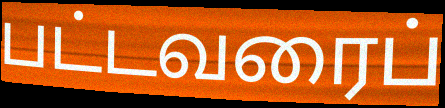
பட்டவரைப்